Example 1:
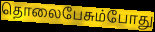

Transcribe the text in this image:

தொலைபேசும்போது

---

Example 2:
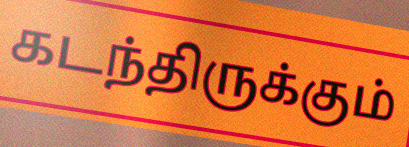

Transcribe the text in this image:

கடந்திருக்கும்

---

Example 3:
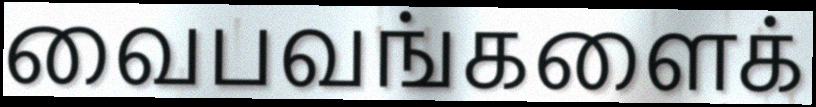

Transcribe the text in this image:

வைபவங்களைக்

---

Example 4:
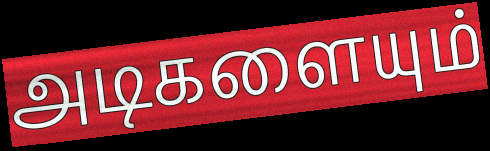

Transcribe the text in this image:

அடிகளையும்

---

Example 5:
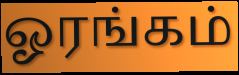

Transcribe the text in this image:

ஓரங்கம்